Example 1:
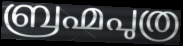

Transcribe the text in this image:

ബ്രഹ്മപുത്ര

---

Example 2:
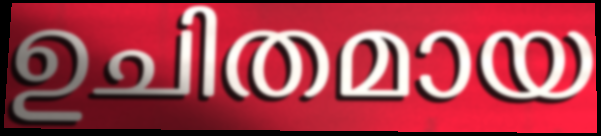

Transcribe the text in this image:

ഉചിതമായ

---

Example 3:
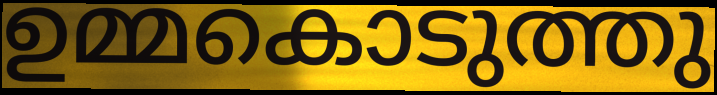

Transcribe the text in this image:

ഉമ്മകൊടുത്തു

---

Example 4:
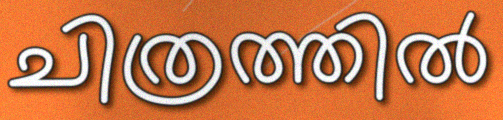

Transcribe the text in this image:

ചിത്രത്തിൽ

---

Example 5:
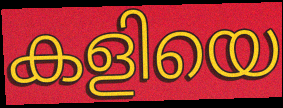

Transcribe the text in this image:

കളിയെ